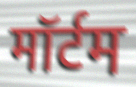
मॉर्टम